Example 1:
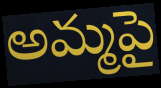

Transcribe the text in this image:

అమ్మపై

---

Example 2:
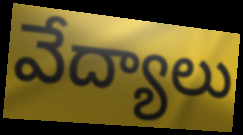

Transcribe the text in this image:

వేద్యాలు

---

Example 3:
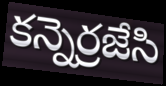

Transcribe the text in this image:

కన్నెర్రజేసి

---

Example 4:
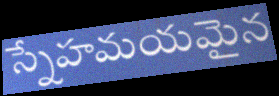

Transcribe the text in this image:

స్నేహమయమైన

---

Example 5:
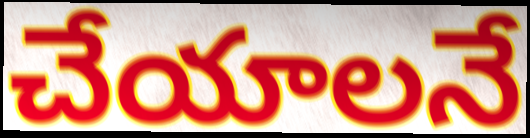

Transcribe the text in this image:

చేయాలనే